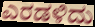
ಎರಡಳಿದು